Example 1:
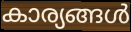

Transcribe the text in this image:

കാര്യങ്ങൾ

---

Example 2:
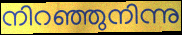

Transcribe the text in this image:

നിറഞ്ഞുനിന്നു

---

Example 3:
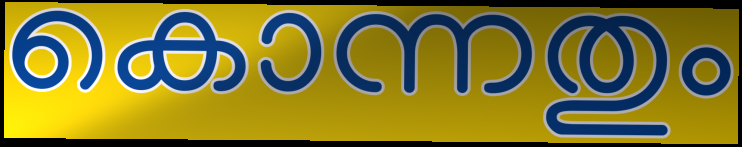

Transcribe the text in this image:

കൊന്നതും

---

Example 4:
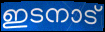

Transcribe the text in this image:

ഇടനാട്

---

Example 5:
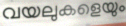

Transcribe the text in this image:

വയലുകളെയും